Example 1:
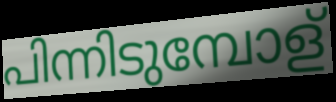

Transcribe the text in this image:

പിന്നിടുമ്പോള്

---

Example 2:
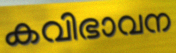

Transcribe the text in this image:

കവിഭാവന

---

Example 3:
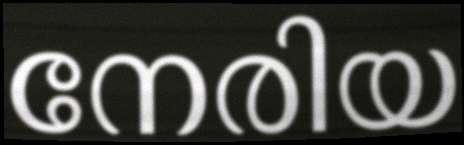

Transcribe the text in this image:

നേരിയ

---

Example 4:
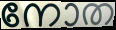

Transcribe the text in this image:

നോത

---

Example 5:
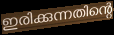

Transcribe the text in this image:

ഇരിക്കുന്നതിന്റെ